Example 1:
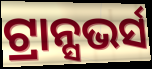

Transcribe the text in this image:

ଟ୍ରାନ୍ସଭର୍ସ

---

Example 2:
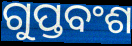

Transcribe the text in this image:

ଗୁପ୍ତବଂଶ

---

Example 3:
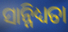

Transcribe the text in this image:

ସାନ୍ନିଧ୍ୟତା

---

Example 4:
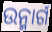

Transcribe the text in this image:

ଉନ୍ମାର୍ଗ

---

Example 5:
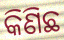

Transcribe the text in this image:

କିଣିଛ